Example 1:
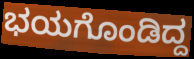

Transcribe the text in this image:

ಭಯಗೊಂಡಿದ್ದ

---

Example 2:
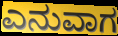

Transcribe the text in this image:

ಎನುವಾಗ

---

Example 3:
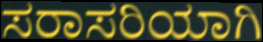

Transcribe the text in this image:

ಸರಾಸರಿಯಾಗಿ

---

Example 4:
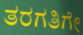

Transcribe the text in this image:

ತರಗತಿಗೇ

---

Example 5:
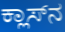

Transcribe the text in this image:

ಕ್ಲಾಸ್‌ನ